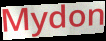
Mydon